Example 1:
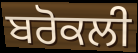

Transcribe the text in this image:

ਬਰੋਕਲੀ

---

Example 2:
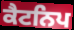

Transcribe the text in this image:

ਕੈਟਨਿਪ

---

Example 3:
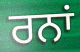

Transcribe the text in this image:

ਰਨਾਂ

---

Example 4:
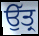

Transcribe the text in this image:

ਉੱਤ੍ਰ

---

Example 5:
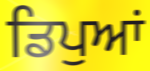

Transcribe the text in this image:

ਡਿਪੁਆਂ